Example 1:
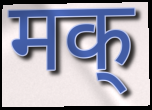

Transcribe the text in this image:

मक्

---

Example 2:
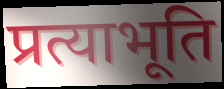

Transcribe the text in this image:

प्रत्याभूति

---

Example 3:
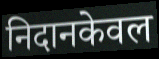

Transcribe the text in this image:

निदानकेवल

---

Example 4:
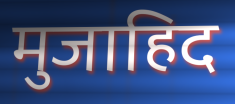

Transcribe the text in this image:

मुजाहिद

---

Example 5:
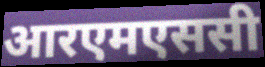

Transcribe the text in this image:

आरएमएससी